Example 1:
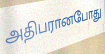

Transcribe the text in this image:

அதிபரானபோது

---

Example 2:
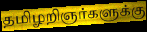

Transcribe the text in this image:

தமிழறிஞர்களுக்கு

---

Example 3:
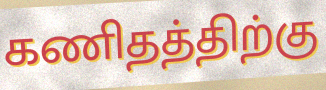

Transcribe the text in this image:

கணிதத்திற்கு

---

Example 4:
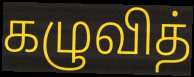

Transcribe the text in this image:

கழுவித்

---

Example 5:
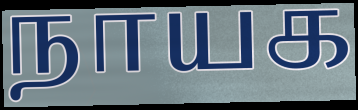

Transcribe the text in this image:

நாயக